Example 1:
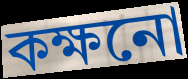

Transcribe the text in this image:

কক্ষনো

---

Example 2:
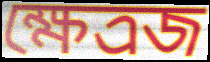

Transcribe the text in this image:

ক্ষেত্রজ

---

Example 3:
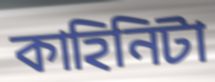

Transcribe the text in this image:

কাহিনিটা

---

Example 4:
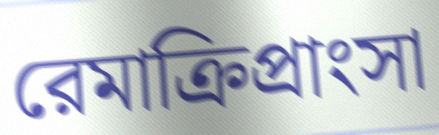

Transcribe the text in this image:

রেমাক্রিপ্রাংসা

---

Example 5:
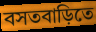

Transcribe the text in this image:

বসতবাড়িতে